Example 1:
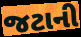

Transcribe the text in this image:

જટાની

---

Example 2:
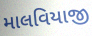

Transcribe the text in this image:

માલવિયાજી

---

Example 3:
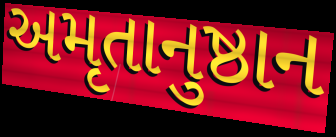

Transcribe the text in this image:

અમૃતાનુષ્ઠાન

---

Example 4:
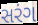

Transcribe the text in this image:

સરંગ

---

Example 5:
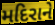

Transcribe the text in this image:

મદિરાને